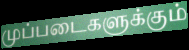
முப்படைகளுக்கும்